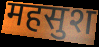
महसुश